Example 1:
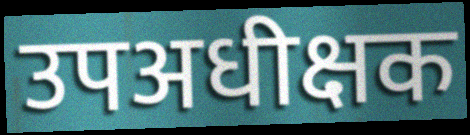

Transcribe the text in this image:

उपअधीक्षक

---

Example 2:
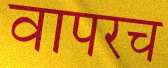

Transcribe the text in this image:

वापरच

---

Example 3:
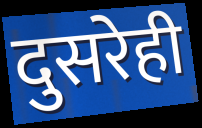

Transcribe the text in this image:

दुसरेही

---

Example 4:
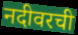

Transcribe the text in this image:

नदीवरची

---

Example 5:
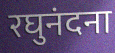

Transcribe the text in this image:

रघुनंदना